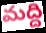
మద్ది